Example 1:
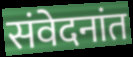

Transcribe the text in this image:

संवेदनांत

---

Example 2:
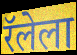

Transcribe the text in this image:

रॅलेला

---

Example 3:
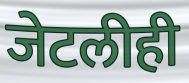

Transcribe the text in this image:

जेटलीही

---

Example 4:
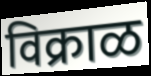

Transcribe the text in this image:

विक्राळ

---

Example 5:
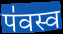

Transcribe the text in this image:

प॑वस्व